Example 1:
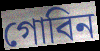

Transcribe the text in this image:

গোবিন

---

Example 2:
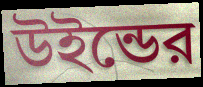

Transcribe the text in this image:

উইন্ডের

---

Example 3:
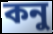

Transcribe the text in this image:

কনু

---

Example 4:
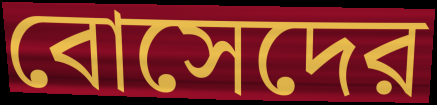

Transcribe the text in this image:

বোসেদের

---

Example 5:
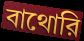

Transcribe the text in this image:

বাথোরি